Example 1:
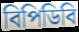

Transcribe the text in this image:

বিপিডিবি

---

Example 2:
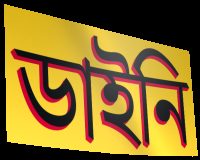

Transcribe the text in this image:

ডাইনি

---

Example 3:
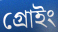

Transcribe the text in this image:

গ্রোইং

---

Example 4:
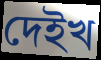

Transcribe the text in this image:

দেইখ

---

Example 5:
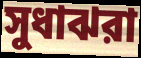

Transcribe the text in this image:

সুধাঝরা